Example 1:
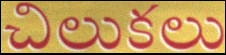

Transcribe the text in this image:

చిలుకలు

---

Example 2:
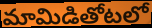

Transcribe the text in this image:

మామిడితోటలో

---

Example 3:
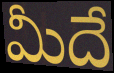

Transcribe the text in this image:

మీదే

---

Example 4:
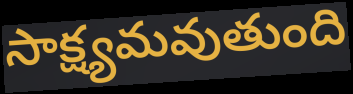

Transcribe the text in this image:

సాక్ష్యమవుతుంది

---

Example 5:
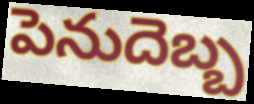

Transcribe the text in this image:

పెనుదెబ్బ